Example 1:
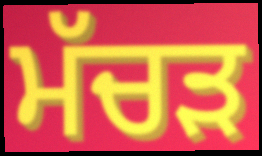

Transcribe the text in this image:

ਮੱਚੜ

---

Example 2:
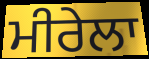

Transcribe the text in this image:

ਮੀਰੇਲਾ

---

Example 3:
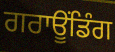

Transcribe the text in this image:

ਗਰਾਊਂਡਿੰਗ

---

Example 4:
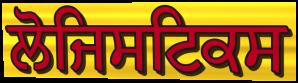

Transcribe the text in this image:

ਲੋਜਿਸਟਿਕਸ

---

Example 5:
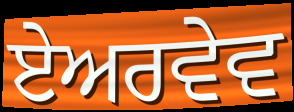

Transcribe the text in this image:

ਏਅਰਵੇਵ